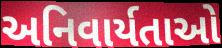
અનિવાર્યતાઓ